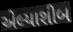
એલ્યાશીબ